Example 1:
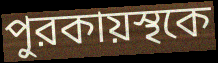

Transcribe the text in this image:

পুরকায়স্থকে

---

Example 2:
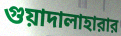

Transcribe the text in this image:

গুয়াদালাহারার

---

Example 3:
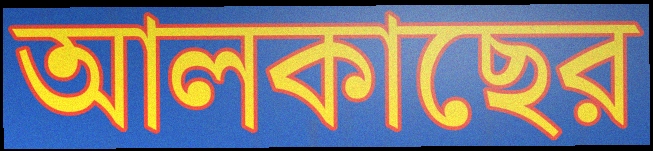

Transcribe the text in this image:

আলকাছের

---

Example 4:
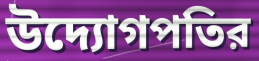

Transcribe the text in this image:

উদ্যোগপতির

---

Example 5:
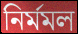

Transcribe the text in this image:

নির্মমল